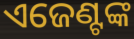
ଏଜେଣ୍ଟଙ୍କ